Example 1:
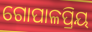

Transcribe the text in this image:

ଗୋପାଳପ୍ରିୟ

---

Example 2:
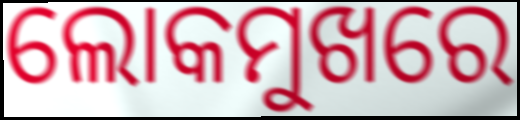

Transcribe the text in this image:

ଲୋକମୁଖରେ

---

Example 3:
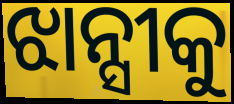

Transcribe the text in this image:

ଝାନ୍ସୀକୁ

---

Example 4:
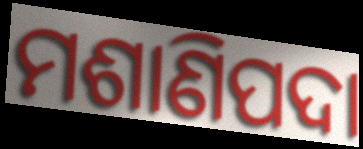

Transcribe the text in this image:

ମଶାଣିପଦା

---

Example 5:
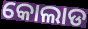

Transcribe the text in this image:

କୋଲାଡ